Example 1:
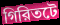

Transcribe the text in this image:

গিরিতটে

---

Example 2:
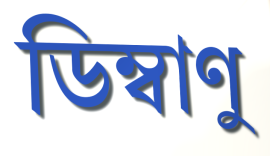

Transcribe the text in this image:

ডিম্বাণু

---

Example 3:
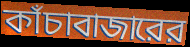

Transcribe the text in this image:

কাঁচাবাজারের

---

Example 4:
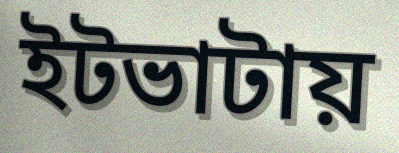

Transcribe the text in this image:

ইটভাটায়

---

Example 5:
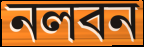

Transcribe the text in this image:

নলবন